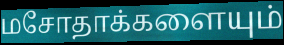
மசோதாக்களையும்